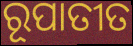
ରୂପାତୀତ